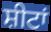
ਸ਼ੀਟਾਂ